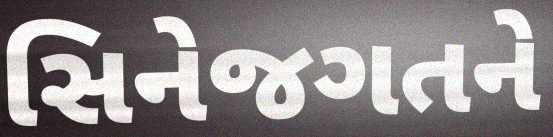
સિનેજગતને